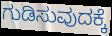
ಗುಡಿಸುವುದಕ್ಕೆ